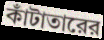
কাঁটাতারের